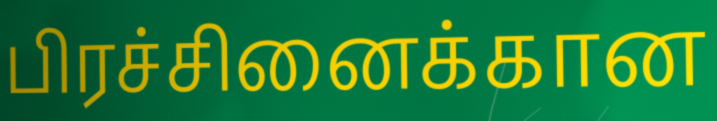
பிரச்சினைக்கான